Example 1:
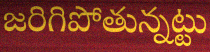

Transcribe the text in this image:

జరిగిపోతున్నట్టు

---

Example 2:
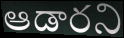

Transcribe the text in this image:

ఆడారని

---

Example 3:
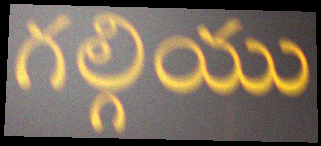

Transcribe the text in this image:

గల్గియు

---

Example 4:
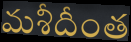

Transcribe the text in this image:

మశీదీంత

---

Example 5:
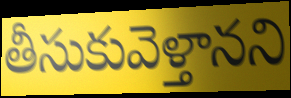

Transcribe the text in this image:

తీసుకువెళ్తానని